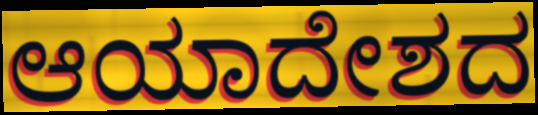
ಆಯಾದೇಶದ